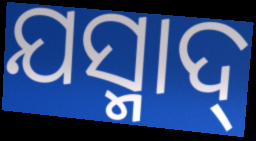
ଯସ୍ମାଦ୍